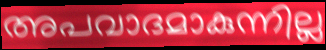
അപവാദമാകുന്നില്ല